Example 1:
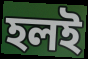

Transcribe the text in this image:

হলই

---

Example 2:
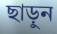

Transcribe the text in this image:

ছাড়ুন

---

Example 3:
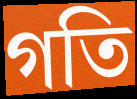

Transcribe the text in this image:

গতি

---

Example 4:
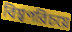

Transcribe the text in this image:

বিশ্বপরিচয়ে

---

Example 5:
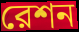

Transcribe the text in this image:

রেশন